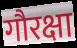
गौरक्षा